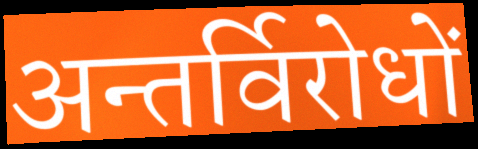
अन्तर्विरोधों